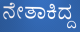
ನೇತಾಕಿದ್ದ